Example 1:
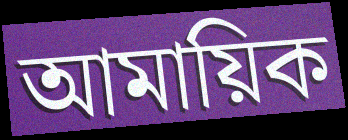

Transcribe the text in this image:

আমায়িক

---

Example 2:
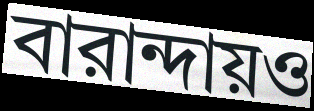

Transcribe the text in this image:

বারান্দায়ও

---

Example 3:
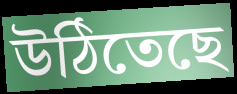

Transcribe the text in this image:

উঠিতেছে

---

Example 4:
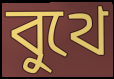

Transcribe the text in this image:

বুথে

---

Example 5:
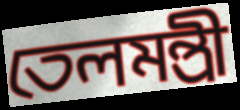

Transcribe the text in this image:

তেলমন্ত্রী